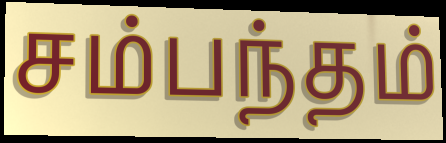
சம்பந்தம்